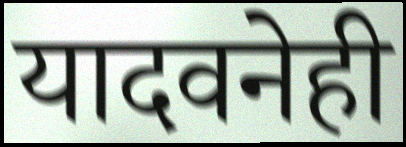
यादवनेही